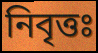
নিবৃত্তঃ